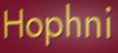
Hophni